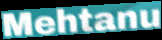
Mehtanu